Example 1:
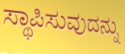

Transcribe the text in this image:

ಸ್ಥಾಪಿಸುವುದನ್ನು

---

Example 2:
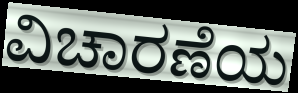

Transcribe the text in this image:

ವಿಚಾರಣೆಯ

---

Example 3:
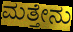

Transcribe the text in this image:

ಮತ್ತೇನು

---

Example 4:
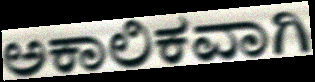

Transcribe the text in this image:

ಅಕಾಲಿಕವಾಗಿ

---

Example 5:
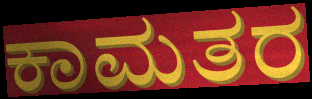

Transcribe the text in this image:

ಕಾಮತರ